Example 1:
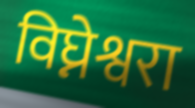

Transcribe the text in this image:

विघ्नेश्वरा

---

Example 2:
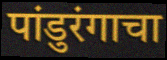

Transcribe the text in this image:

पांडुरंगाचा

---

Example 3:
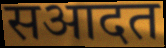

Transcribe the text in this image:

सआदत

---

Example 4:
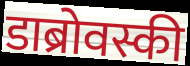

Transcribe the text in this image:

डाब्रोवस्की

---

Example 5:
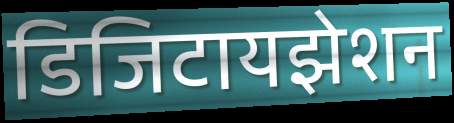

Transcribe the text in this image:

डिजिटायझेशन